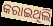
କରାଇଥିଲି